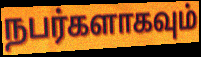
நபர்களாகவும்